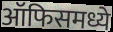
ऑफिसमध्ये